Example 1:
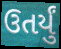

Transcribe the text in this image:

ઉતર્યું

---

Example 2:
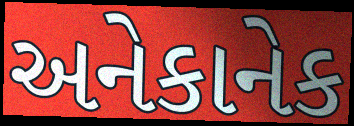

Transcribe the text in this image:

અનેકાનેક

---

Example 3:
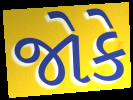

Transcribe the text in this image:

જોકે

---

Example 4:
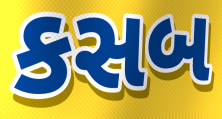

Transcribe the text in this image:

કસબ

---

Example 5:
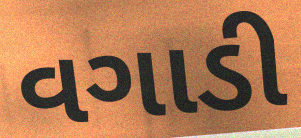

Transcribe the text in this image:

વગાડી